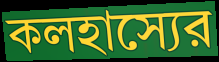
কলহাস্যের